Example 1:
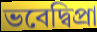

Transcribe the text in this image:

ভবেদ্বিপ্রা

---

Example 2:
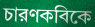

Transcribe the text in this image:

চারণকবিকে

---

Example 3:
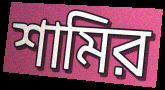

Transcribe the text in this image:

শামির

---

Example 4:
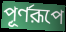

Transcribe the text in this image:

পূর্ণরূপে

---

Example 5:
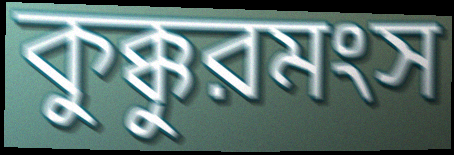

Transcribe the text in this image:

কুক্কুরমংস